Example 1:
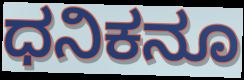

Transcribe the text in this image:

ಧನಿಕನೂ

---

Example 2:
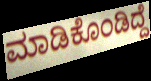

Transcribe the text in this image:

ಮಾಡಿಕೊಂಡಿದ್ದೆ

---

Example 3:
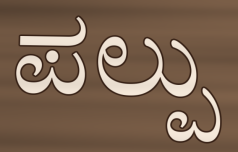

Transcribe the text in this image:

ಪಲ್ಪು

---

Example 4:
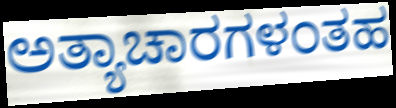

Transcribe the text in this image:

ಅತ್ಯಾಚಾರಗಳಂತಹ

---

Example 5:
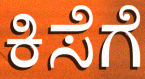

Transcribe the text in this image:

ಕಿಸೆಗೆ